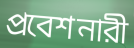
প্রবেশনারী